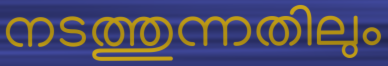
നടത്തുന്നതിലും